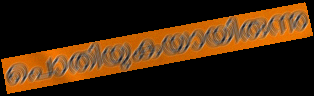
പൊതിയുകയായിരുന്നു